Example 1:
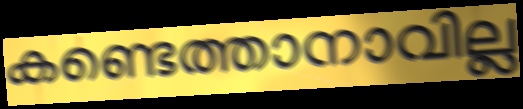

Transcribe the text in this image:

കണ്ടെത്താനാവില്ല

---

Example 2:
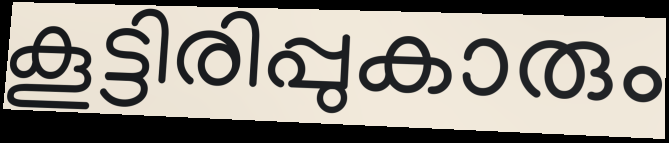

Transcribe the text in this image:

കൂട്ടിരിപ്പുകാരും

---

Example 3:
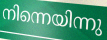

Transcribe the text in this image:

നിന്നെയിന്നു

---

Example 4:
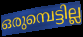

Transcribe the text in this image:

ഒരുമ്പെട്ടില്ല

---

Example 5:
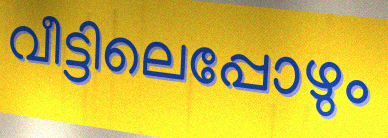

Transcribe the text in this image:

വീട്ടിലെപ്പോഴും